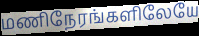
மணிநேரங்களிலேயே